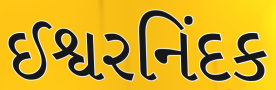
ઈશ્વરનિંદક